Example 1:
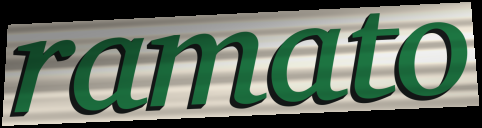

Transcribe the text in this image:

ramato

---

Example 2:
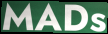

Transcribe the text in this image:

MADs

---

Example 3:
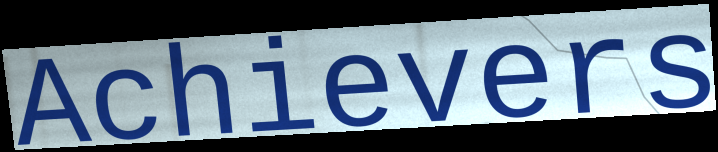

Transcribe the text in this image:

Achievers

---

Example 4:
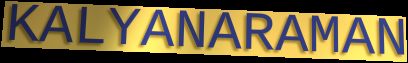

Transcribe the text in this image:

KALYANARAMAN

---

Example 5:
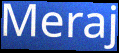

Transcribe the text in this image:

Meraj